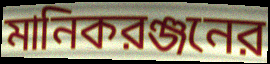
মানিকরঞ্জনের